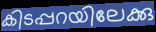
കിടപ്പറയിലേക്കു